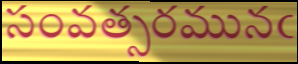
సంవత్సరమునఁ